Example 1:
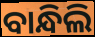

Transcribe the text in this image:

ବାନ୍ଧିଲି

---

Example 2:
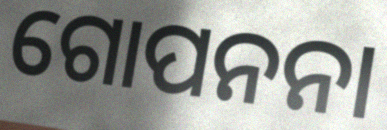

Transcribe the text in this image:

ଗୋପନନା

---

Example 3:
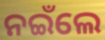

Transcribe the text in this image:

ନଇଁଲେ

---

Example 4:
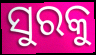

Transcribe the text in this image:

ସୁରକୁ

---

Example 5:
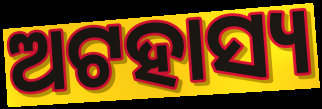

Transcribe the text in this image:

ଅଟହାସ୍ୟ